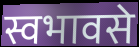
स्वभावसे